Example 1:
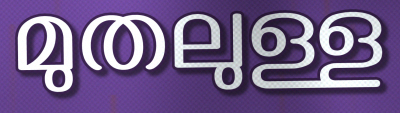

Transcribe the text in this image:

മുതലുള്ള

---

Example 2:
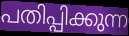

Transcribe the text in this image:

പതിപ്പിക്കുന്ന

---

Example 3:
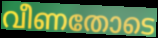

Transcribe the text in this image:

വീണതോടെ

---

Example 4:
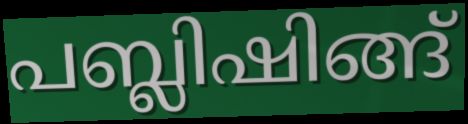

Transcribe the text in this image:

പബ്ലിഷിങ്ങ്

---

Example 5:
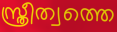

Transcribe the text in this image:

സ്ത്രീത്വത്തെ